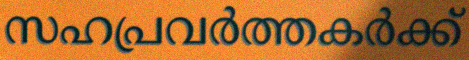
സഹപ്രവർത്തകർക്ക്